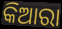
କିଆରା